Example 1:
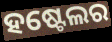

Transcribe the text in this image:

ହଷ୍ଟେଲର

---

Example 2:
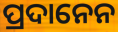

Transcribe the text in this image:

ପ୍ରଦାନେନ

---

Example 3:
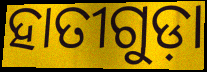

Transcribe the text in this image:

ହାତୀଗୁଡ଼ା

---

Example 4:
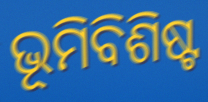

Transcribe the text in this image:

ଭୂମିବିଶିଷ୍ଟ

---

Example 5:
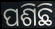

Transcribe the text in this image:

ପଶିଛି